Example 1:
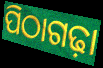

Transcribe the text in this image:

ପିଠାଗଢ଼ା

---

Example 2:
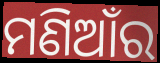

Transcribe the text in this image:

ମଣିଆଁର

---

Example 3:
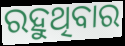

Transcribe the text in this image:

ରହୁଥିବାର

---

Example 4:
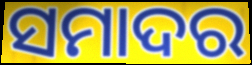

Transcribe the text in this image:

ସମାଦର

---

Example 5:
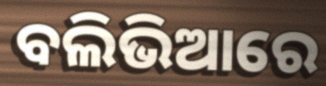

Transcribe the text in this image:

ବଲିଭିଆରେ